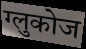
ग्लुकोज